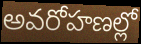
అవరోహణల్లో